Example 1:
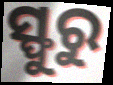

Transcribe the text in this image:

ସ୍ଫୁରୁ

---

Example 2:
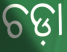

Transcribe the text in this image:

ଚଡ଼ା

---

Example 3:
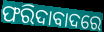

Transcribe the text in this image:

ଫରିଦାବାଦରେ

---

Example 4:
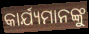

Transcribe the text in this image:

କାର୍ଯ୍ୟମାନଙ୍କୁ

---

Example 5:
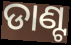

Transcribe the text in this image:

ଡାଣ୍ଟ